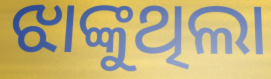
ଝାଙ୍କୁଥିଲା